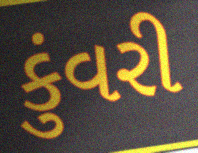
કુંવરી